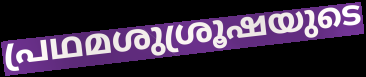
പ്രഥമശുശ്രൂഷയുടെ